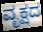
ವೃಕ್ಷದ